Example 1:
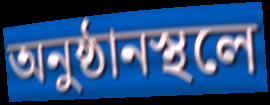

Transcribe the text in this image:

অনুষ্ঠানস্থলে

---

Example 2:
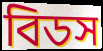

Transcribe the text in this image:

বিডস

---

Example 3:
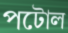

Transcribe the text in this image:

পটোল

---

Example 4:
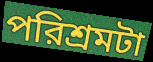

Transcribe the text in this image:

পরিশ্রমটা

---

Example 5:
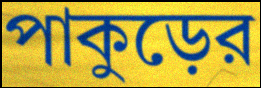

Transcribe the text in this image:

পাকুড়ের